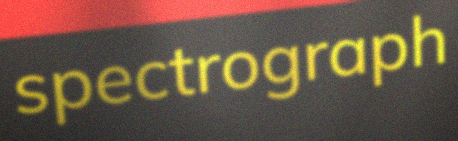
spectrograph